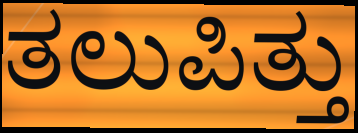
ತಲುಪಿತ್ತು